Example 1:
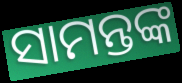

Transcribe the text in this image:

ସାମନ୍ତଙ୍କ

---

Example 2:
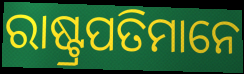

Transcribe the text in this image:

ରାଷ୍ଟ୍ରପତିମାନେ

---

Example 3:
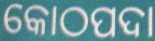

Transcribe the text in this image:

କୋଠପଦା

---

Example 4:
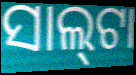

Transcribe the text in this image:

ସାଲ୍‌ଟା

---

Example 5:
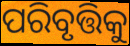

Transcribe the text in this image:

ପରିବୃତ୍ତିକୁ